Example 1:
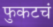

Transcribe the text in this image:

फुकटचं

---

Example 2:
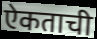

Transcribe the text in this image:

ऐकताची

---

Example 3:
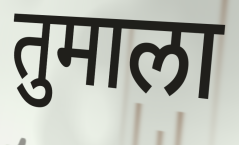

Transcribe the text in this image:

तुमाला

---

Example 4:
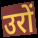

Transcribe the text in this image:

उरों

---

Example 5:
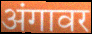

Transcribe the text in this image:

अंगावर